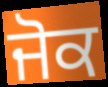
ਜੋਕ